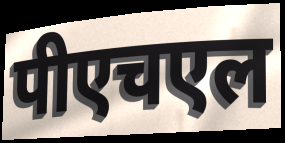
पीएचएल